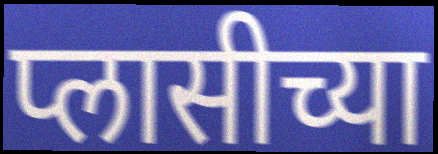
प्लासीच्या